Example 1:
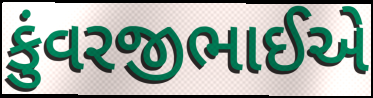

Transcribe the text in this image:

કુંવરજીભાઈએ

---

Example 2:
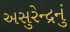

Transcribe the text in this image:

અસુરેન્દ્રનું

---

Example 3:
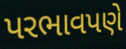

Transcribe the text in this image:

પરભાવપણે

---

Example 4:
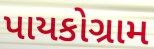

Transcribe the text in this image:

પાયકોગ્રામ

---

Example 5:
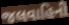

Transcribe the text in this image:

જલવાહિની